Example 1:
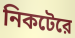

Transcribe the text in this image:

নিকটেরে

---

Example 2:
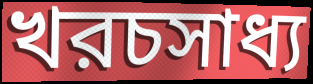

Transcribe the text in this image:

খরচসাধ্য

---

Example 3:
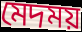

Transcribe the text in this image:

মেদময়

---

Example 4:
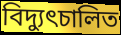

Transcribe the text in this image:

বিদ্যুৎচালিত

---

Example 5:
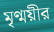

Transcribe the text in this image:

মৃণ্ময়ীর